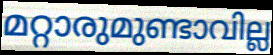
മറ്റാരുമുണ്ടാവില്ല